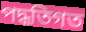
পদ্ধতিগত